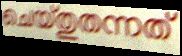
ചെയ്തുതന്നത്